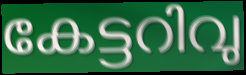
കേട്ടറിവു